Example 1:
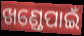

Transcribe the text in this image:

ଖଣ୍ଡେପାଇଁ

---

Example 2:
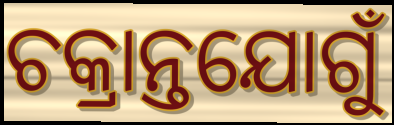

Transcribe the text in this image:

ଚକ୍ରାନ୍ତଯୋଗୁଁ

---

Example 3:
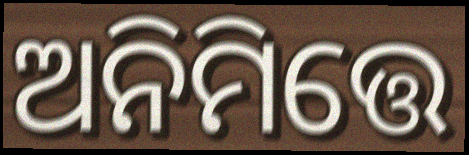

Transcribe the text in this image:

ଅନିମିତ୍ତେ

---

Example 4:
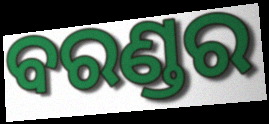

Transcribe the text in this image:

ବରଣ୍ଡର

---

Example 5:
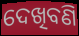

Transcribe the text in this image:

ଦେଖିବଣି